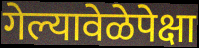
गेल्यावेळेपेक्षा